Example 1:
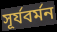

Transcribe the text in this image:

সূর্যবর্মন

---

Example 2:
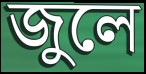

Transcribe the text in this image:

জুলে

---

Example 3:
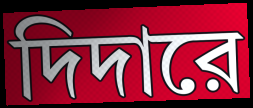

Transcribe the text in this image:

দিদারে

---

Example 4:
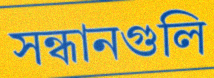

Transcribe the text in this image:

সন্ধানগুলি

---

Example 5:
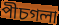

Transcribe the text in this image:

পীচগলা